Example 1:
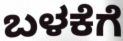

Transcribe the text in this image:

ಬಳಕೆಗೆ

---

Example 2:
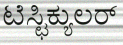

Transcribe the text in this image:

ಟೆಸ್ಟಿಕ್ಯುಲರ್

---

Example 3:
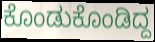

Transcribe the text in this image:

ಕೊಂಡುಕೊಂಡಿದ್ದ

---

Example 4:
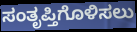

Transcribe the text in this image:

ಸಂತೃಪ್ತಿಗೊಳಿಸಲು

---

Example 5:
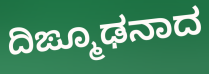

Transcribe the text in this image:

ದಿಙ್ಮೂಢನಾದ